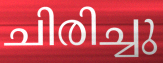
ചിരിച്ചു